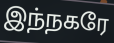
இந்நகரே